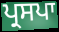
ਪ੍ਰਸਪਾ